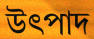
উৎপাদ